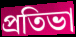
প্রতিভা